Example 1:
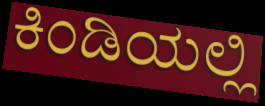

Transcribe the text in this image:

ಕಿಂಡಿಯಲ್ಲಿ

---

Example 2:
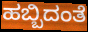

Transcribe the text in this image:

ಹಬ್ಬಿದಂತೆ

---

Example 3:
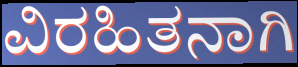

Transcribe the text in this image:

ವಿರಹಿತನಾಗಿ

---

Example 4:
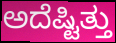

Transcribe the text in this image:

ಅದೆಷ್ಟಿತ್ತು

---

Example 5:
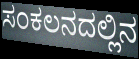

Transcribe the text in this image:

ಸಂಕಲನದಲ್ಲಿನ